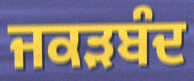
ਜਕੜਬੰਦ